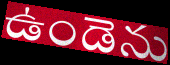
ఉండెను